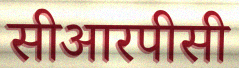
सीआरपीसी